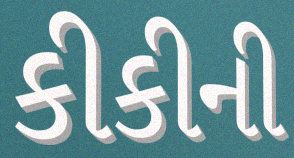
કીકીની